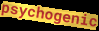
psychogenic